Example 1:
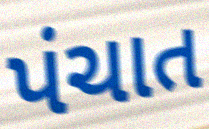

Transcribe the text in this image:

પંચાત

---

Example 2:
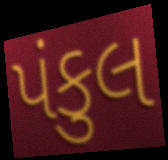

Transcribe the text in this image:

પંકુલ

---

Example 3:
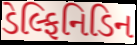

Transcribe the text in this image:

ડેલ્ફિનિડિન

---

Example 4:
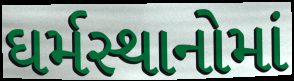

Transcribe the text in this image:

ઘર્મસ્થાનોમાં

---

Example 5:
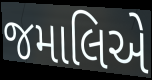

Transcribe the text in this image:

જમાલિએ